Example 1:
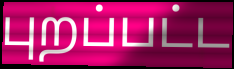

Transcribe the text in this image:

புறப்பட்ட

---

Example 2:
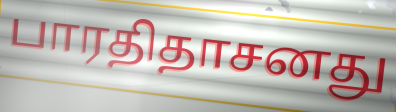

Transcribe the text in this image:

பாரதிதாசனது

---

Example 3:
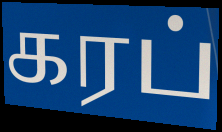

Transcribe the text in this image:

கரப்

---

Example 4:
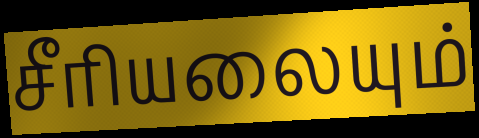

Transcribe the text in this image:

சீரியலையும்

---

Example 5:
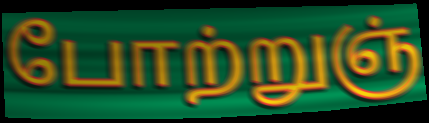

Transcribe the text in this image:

போற்றுஞ்